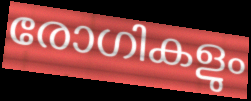
രോഗികളും